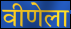
वीणेला